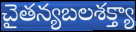
చైతన్యబలశక్త్యా